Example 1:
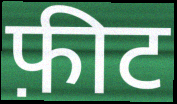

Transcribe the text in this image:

फ़ीट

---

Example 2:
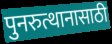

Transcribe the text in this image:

पुनरुत्थानासाठी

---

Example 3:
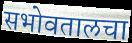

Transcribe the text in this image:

सभोवतालचा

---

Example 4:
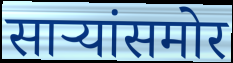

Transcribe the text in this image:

साऱ्यांसमोर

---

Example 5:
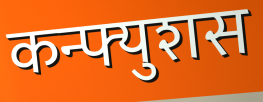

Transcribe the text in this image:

कन्फ्युशस